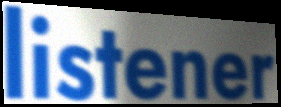
listener